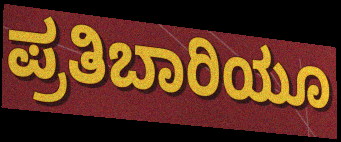
ಪ್ರತಿಬಾರಿಯೂ